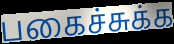
பகைச்சுக்க